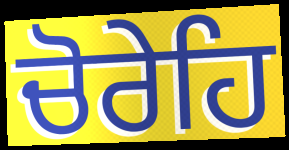
ਚੋਰੇਹਿ